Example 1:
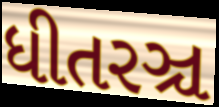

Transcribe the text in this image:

ધીતરઞ્ચ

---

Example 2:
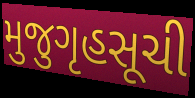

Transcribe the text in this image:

મુજુગૃહસૂચી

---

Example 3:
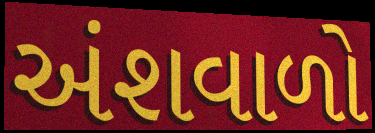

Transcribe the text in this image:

અંશવાળો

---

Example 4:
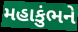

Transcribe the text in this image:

મહાકુંભને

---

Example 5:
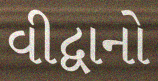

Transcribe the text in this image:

વીદ્વાનો